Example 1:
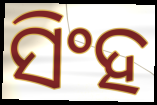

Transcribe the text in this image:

ସିଂହ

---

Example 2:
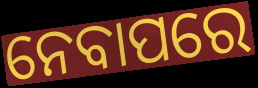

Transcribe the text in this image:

ନେବାପରେ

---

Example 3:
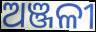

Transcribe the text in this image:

ଅଞ୍ଜଳୀ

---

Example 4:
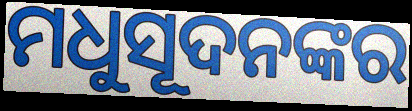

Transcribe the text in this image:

ମଧୁସୂଦନଙ୍କର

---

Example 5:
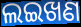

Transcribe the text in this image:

ଲଇଖଣ